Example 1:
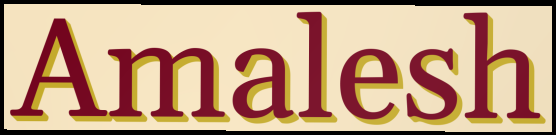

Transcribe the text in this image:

Amalesh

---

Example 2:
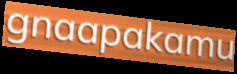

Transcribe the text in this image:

gnaapakamu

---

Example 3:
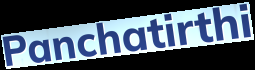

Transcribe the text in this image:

Panchatirthi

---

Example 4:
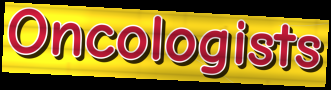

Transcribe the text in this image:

Oncologists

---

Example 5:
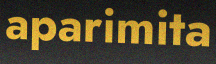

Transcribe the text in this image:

aparimita